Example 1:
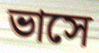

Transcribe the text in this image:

ভাসে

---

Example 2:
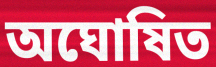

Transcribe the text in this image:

অঘোষিত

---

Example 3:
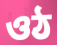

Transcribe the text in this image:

ওঠ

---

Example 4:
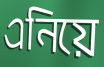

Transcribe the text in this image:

এনিয়ে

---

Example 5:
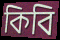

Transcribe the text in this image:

কিবি